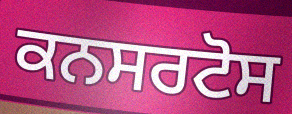
ਕਨਸਰਟੋਸ